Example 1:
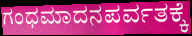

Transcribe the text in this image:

ಗಂಧಮಾದನಪರ್ವತಕ್ಕೆ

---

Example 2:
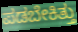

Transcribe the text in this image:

ಪಡಬೇಕಿತ್ತು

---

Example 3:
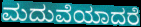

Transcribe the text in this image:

ಮದುವೆಯಾದರೆ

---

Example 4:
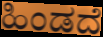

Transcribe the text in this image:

ಹಿಂಡದೆ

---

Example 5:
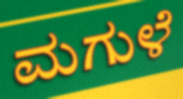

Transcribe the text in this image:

ಮಗುಳೆ